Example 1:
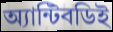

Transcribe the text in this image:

অ্যান্টিবডিই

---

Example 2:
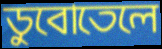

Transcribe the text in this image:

ডুবোতেলে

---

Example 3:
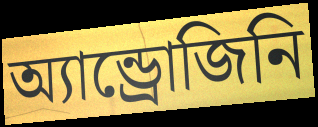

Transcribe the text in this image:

অ্যান্ড্রোজিনি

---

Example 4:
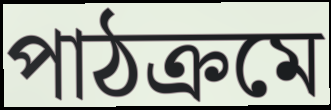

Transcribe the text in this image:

পাঠক্রমে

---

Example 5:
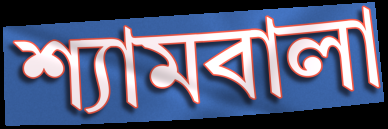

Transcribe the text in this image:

শ্যামবালা